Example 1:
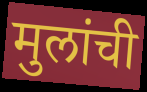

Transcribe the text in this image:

मुलांची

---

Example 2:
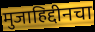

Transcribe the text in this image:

मुजाहिद्दीनचा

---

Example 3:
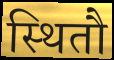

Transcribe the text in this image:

स्थितौ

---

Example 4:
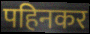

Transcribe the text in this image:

पहिनकर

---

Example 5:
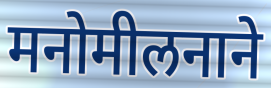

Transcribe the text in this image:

मनोमीलनाने